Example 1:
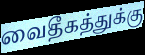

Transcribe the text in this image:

வைதீகத்துக்கு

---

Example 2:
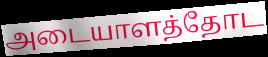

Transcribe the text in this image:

அடையாளத்தோட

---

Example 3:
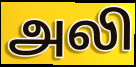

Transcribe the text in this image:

அலி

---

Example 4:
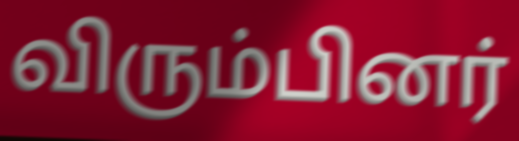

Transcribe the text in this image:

விரும்பினர்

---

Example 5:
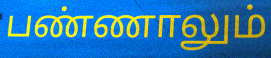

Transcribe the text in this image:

பண்ணாலும்